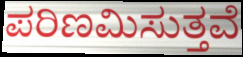
ಪರಿಣಮಿಸುತ್ತವೆ